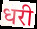
धरी